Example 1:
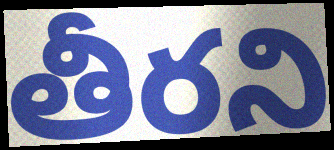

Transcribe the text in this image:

తీరని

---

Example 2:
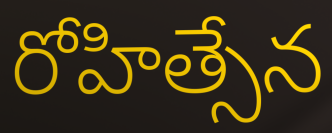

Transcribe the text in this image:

రోహిత్సేన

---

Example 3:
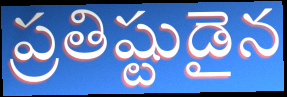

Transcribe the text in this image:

ప్రతిష్టుడైన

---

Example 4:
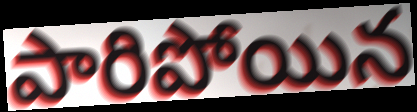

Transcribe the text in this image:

పారిపోయిన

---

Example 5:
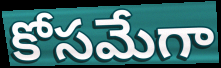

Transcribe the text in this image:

కోసమేగా